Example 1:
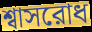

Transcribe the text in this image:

শ্বাসরোধ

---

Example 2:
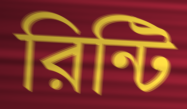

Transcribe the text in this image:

রিন্টি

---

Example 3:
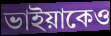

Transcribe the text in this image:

ভাইয়াকেও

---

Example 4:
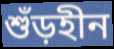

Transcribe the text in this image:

শুঁড়হীন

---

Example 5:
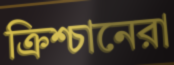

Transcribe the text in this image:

ক্রিশ্চানেরা